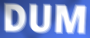
DUM